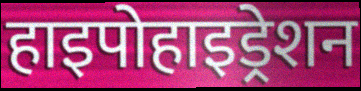
हाइपोहाइड्रेशन